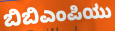
ಬಿಬಿಎಂಪಿಯು